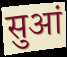
सुआं